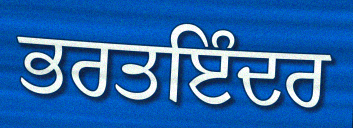
ਭਰਤਇੰਦਰ